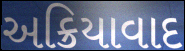
અક્રિયાવાદ